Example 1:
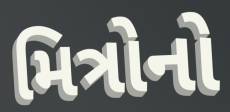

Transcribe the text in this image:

મિત્રોનો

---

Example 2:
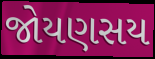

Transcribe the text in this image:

જોયણસય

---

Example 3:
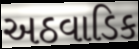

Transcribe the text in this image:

અઠવાડિક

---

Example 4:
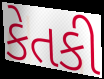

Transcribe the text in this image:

કેતકી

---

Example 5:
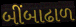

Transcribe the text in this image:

બીંબાઢાળ